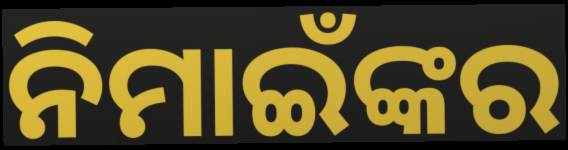
ନିମାଇଁଙ୍କର